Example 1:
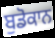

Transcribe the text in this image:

ਬੁਡੋਕਾਨ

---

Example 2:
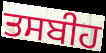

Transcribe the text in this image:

ਤਸਬੀਹ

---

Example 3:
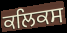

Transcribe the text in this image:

ਕਲਿਕਸ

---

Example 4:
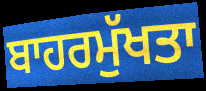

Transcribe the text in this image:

ਬਾਹਰਮੁੱਖਤਾ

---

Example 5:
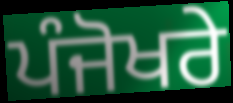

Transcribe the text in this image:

ਪੰਜੋਖਰੇ